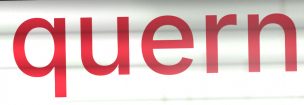
quern